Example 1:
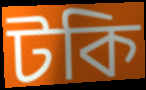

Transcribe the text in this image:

টকি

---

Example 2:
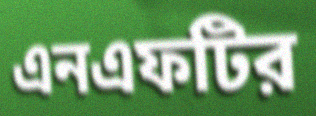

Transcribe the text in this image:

এনএফটির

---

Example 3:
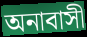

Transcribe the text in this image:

অনাবাসী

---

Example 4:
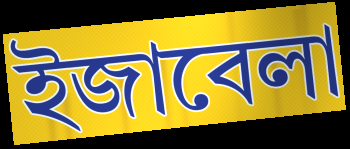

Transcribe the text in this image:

ইজাবেলা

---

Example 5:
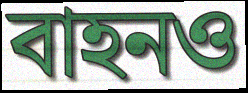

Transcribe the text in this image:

বাহনও